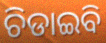
ଚିଡାଇବି